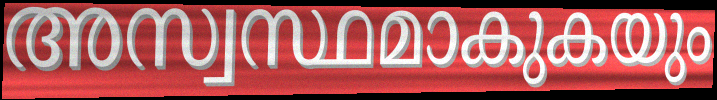
അസ്വസ്ഥമാകുകയും